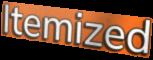
Itemized